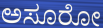
ಅಸೂರೋ